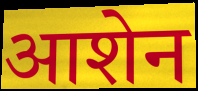
आशेन